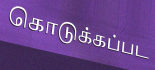
கொடுக்கப்பட